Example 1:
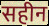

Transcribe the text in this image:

सहीन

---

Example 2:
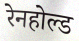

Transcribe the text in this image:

रेनहोल्ड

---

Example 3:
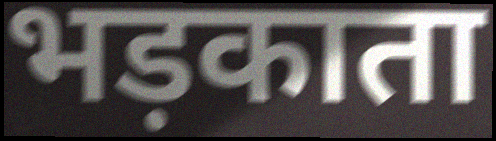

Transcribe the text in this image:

भड़काता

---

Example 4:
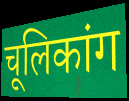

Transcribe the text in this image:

चूलिकांग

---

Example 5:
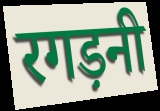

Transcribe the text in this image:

रगड़नी